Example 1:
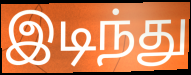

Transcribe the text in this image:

இடிந்து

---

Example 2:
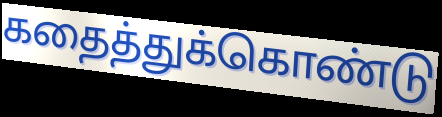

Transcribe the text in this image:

கதைத்துக்கொண்டு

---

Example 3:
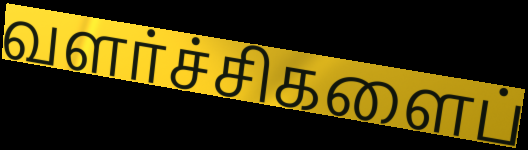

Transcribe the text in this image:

வளர்ச்சிகளைப்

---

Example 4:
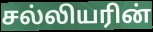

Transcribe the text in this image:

சல்லியரின்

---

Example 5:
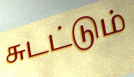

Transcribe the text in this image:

சுடட்டும்